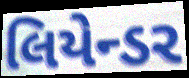
લિયેન્ડર